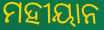
ମହୀୟାନ